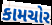
કામચોર